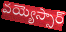
వయ్యెస్సార్